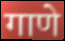
गाणे